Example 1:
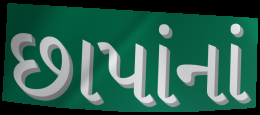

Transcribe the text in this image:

છાપાંનાં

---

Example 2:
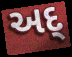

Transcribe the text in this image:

અદ્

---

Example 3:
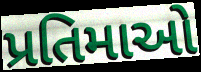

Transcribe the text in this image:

પ્રતિમાઓ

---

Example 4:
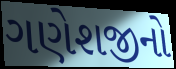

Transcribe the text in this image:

ગણેશજીનો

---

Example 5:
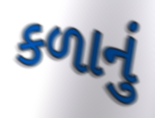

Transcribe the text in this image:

કળાનું